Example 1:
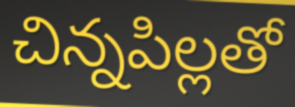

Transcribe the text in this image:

చిన్నపిల్లతో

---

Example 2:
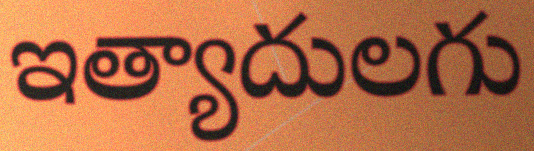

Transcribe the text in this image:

ఇత్యాదులగు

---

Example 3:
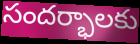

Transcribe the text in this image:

సందర్భాలకు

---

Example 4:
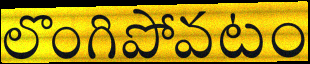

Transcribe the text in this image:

లొంగిపోవటం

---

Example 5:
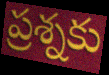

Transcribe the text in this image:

ప్రశ్నకు